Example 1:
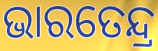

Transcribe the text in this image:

ଭାରତେନ୍ଦ୍ର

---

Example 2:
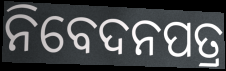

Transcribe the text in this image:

ନିବେଦନପତ୍ର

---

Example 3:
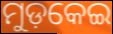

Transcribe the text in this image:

ମୁଡ଼କେଇ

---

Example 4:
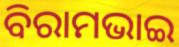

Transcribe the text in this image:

ବିରାମଭାଇ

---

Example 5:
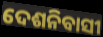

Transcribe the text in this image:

ଦେଶନିବାସୀ